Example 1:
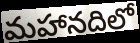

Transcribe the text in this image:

మహానదిలో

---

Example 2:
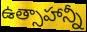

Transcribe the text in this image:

ఉత్సాహాన్నీ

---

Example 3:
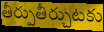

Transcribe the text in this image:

తీర్పుతీర్చుటకు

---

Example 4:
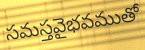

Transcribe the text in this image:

సమస్తవైభవముతో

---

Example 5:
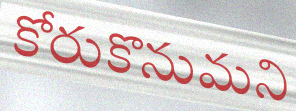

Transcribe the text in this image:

కోరుకొనుమని